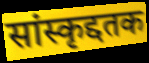
सांस्कृद्दतक